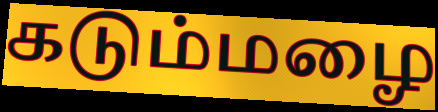
கடும்மழை